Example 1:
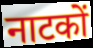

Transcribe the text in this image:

नाटकों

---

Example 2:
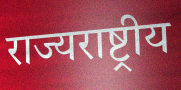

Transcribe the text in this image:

राज्यराष्ट्रीय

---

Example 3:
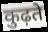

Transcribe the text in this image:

कुढ़ते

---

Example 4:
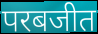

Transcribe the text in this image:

परबजीत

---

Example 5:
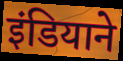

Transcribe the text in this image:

इंडियाने